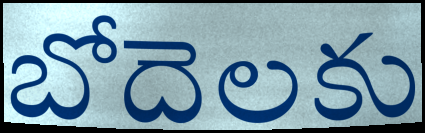
బోదెలకు